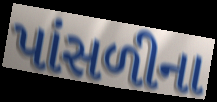
પાંસળીના